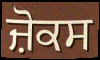
ਜ਼ੋਕਸ